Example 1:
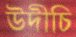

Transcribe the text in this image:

উদীচি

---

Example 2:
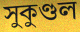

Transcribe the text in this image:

সুকুণ্ডল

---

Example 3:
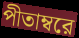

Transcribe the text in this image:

পীতাম্বরে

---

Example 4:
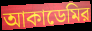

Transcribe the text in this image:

আকাডেমির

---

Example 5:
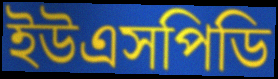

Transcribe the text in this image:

ইউএসপিডি